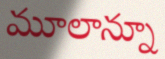
మూలాన్నూ